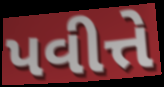
પવીત્તે